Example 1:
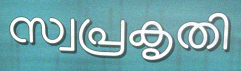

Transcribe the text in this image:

സ്വപ്രകൃതി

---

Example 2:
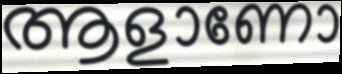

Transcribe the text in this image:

ആളാണോ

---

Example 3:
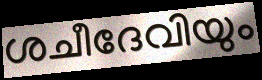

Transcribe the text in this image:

ശചീദേവിയും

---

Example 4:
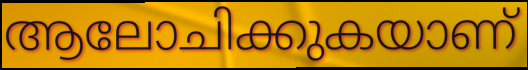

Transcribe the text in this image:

ആലോചിക്കുകയാണ്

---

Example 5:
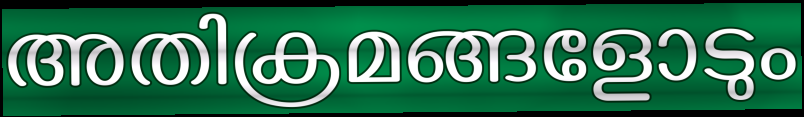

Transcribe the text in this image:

അതിക്രമങ്ങളോടും